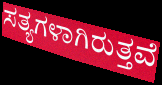
ಸತ್ಯಗಳಾಗಿರುತ್ತವೆ